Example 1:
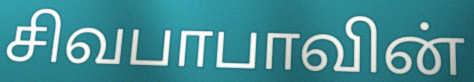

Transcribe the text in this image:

சிவபாபாவின்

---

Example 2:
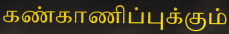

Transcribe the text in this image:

கண்காணிப்புக்கும்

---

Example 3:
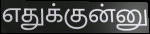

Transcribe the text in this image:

எதுக்குன்னு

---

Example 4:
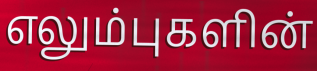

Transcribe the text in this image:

எலும்புகளின்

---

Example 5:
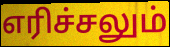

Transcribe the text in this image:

எரிச்சலும்